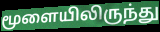
மூளையிலிருந்து